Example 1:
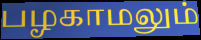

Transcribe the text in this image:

பழகாமலும்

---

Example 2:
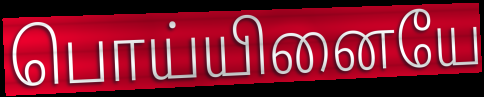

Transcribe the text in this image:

பொய்யினையே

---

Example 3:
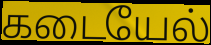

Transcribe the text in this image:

கடையேல்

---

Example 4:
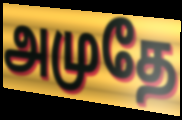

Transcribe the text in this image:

அமுதே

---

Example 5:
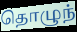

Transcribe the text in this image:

தொழுந்